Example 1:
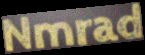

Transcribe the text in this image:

Nmrad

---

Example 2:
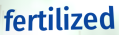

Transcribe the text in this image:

fertilized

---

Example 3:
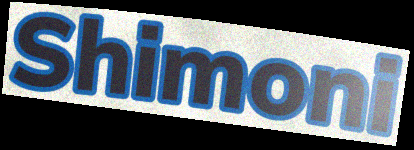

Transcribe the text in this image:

Shimoni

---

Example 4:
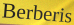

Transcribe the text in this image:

Berberis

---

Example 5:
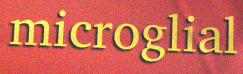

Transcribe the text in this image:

microglial